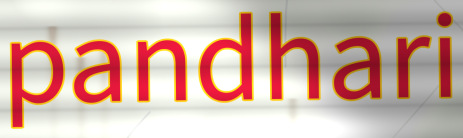
pandhari